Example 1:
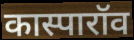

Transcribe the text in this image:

कास्पारॉव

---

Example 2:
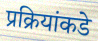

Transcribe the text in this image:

प्रक्रियांकडे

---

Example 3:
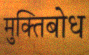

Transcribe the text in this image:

मुक्तिबोध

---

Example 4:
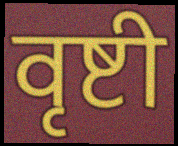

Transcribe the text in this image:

वृष्टी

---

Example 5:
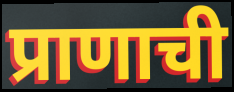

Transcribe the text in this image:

प्राणाची